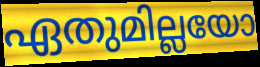
ഏതുമില്ലയോ